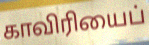
காவிரியைப்